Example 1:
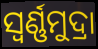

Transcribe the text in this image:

ସ୍ୱର୍ଣ୍ଣମୁଦ୍ରା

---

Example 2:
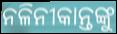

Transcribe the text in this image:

ନଳିନୀକାନ୍ତଙ୍କୁ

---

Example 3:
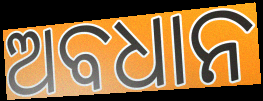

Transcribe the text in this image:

ଅବଧାନ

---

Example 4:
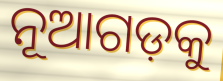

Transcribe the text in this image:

ନୂଆଗଡ଼କୁ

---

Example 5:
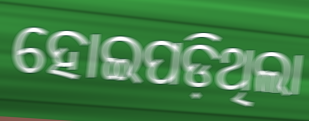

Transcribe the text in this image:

ହୋଇପଡ଼ିଥିଲା